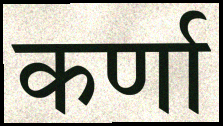
कर्णा